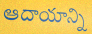
ఆదాయాన్ని